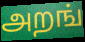
அறங்